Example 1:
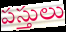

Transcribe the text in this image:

పస్తులు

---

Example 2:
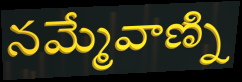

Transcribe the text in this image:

నమ్మేవాణ్ని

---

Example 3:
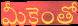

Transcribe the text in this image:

మీకెంతో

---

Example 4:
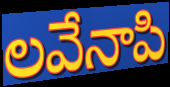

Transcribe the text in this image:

లవేనాపి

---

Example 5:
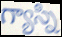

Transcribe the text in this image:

గ్యాస్ని